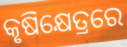
କୃଷିକ୍ଷେତ୍ରରେ